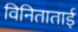
विनिताताई